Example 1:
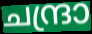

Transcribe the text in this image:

ചന്ദ്രാ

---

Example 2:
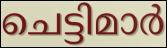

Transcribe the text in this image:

ചെട്ടിമാർ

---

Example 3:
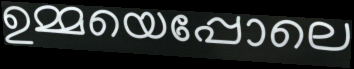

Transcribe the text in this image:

ഉമ്മയെപ്പോലെ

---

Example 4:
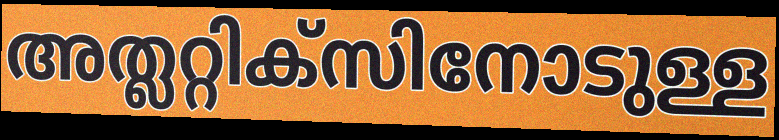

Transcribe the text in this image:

അത്ലറ്റിക്സിനോടുള്ള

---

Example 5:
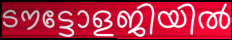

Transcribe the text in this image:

ടൗട്ടോളജിയിൽ